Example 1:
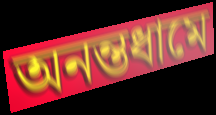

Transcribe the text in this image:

অনন্তধামে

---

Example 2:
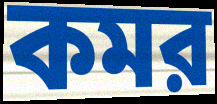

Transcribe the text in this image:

কমর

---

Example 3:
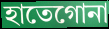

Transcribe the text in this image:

হাতেগোনা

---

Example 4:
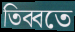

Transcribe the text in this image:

তিব্বতে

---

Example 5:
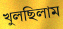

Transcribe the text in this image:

খুলছিলাম